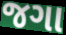
જગા